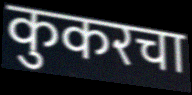
कुकरचा